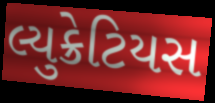
લ્યુક્રેટિયસ